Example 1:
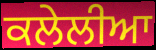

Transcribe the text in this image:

ਕਲੇਲੀਆ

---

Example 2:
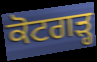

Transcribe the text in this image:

ਕੋਟਗੜ੍ਹ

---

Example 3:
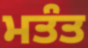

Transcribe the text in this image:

ਮਤੰਤ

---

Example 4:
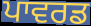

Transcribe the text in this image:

ਪਾਵਰਡ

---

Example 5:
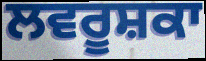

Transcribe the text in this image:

ਲਵਰੂਸ਼ਕਾ